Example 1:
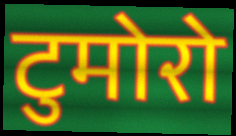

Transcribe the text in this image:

टुमोरो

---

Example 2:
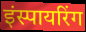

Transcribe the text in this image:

इंस्पायरिंग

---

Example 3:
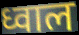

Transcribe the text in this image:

ध्वाल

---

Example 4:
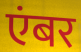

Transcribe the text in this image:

एंबर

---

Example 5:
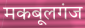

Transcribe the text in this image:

मकबूलगंज